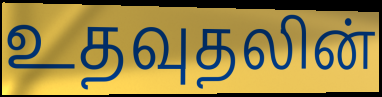
உதவுதலின்